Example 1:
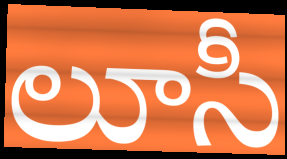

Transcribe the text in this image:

లూసీ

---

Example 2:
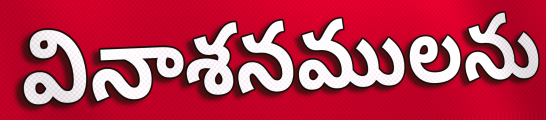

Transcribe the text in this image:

వినాశనములను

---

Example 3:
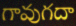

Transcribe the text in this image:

గావుగదా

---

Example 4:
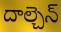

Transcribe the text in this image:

దాల్చెన్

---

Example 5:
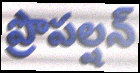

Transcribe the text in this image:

ప్రొపల్షన్